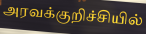
அரவக்குறிச்சியில்